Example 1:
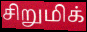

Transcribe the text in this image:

சிறுமிக்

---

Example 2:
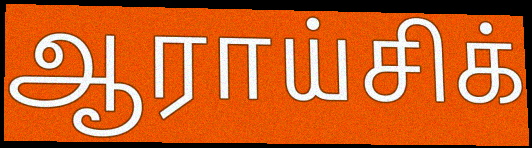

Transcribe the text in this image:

ஆராய்சிக்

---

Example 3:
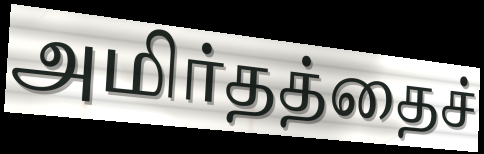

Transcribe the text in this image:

அமிர்தத்தைச்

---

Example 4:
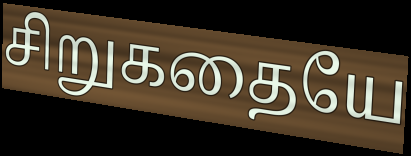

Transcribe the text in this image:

சிறுகதையே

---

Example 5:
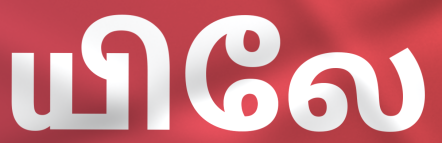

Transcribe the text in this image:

யிலே